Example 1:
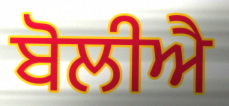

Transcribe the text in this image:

ਬੋਲੀਐ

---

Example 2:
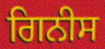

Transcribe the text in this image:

ਗਿਨੀਸ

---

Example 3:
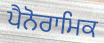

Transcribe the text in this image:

ਪੈਨੋਰਾਮਿਕ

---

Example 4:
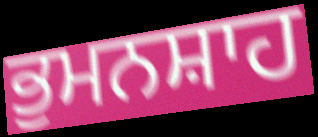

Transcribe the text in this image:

ਭੁਮਨਸ਼ਾਹ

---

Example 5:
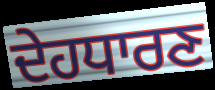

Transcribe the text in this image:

ਦੇਹਧਾਰਣ